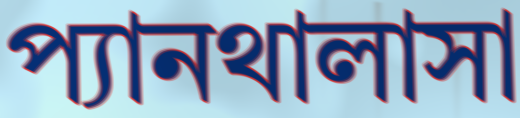
প্যানথালাসা